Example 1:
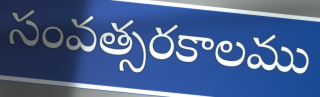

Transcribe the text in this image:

సంవత్సరకాలము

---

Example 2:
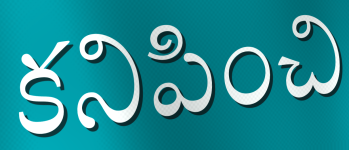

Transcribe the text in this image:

కనిపించి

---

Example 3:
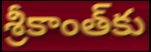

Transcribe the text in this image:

శ్రీకాంత్‌కు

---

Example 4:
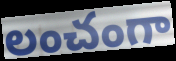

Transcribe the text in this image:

లంచంగా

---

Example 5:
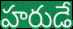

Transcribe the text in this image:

హరుడే